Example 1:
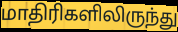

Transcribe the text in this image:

மாதிரிகளிலிருந்து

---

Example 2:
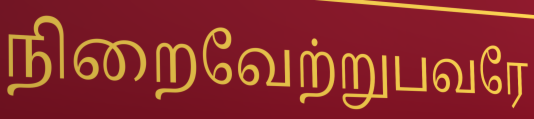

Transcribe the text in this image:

நிறைவேற்றுபவரே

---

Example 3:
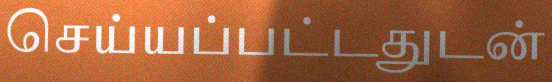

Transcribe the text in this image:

செய்யப்பட்டதுடன்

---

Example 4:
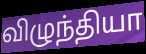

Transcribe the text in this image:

விழுந்தியா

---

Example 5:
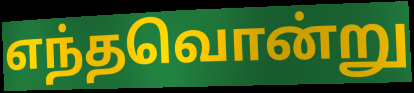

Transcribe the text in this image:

எந்தவொன்று